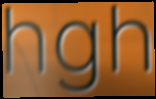
hgh